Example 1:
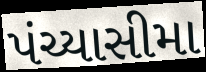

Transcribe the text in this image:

પંચ્યાસીમા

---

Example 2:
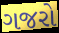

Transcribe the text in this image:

ગજરો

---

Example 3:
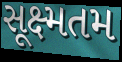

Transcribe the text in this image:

સૂક્ષ્મતમ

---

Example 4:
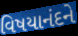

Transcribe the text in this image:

વિષયાનંદને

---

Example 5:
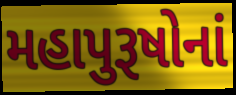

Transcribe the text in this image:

મહાપુરૂષોનાં